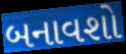
બનાવશો